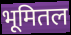
भूमितल